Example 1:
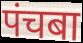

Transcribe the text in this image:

पंचबा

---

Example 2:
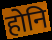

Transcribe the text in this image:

होनि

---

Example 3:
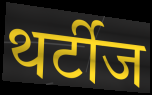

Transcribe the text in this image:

थर्टीज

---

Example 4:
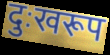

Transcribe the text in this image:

दुःखरूप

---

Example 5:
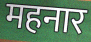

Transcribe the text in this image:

महनार